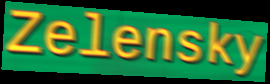
Zelensky